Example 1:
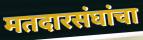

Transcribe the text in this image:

मतदारसंघांचा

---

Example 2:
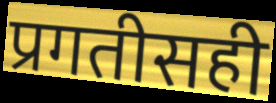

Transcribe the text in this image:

प्रगतीसही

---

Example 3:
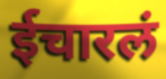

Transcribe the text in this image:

ईचारलं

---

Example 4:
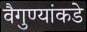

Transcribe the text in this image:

वैगुण्यांकडे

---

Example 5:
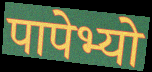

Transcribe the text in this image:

पापेभ्यो